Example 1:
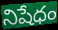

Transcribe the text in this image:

నిషేధం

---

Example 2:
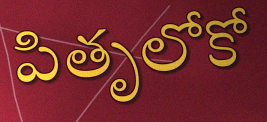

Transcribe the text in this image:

పితృలోకో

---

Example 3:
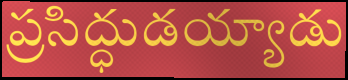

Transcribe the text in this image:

ప్రసిద్ధుడయ్యాడు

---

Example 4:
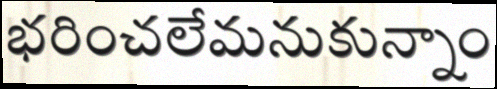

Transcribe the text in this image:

భరించలేమనుకున్నాం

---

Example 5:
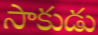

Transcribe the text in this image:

సాకుడు